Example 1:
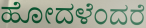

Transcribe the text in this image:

ಹೋದಳೆಂದರೆ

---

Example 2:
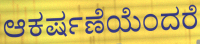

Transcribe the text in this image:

ಆಕರ್ಷಣೆಯೆಂದರೆ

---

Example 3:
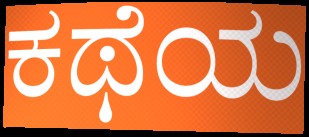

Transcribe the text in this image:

ಕಥೆಯ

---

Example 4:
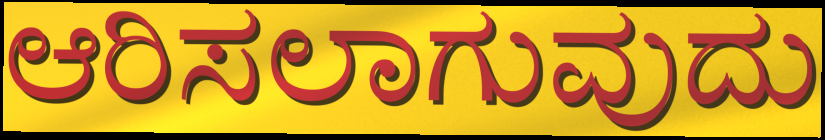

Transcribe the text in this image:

ಆರಿಸಲಾಗುವುದು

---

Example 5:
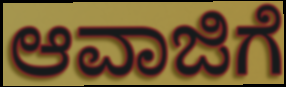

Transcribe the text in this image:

ಆವಾಜಿಗೆ